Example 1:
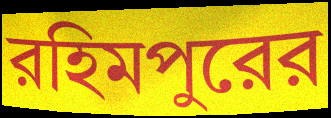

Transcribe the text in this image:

রহিমপুরের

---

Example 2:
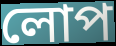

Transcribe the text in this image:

লোপ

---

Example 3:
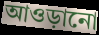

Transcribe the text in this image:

আওড়ানো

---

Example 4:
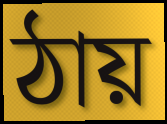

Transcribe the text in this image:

ঠায়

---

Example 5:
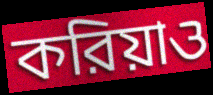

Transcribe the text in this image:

করিয়াও